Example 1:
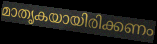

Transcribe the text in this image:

മാതൃകയായിരിക്കണം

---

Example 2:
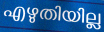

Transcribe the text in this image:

എഴുതിയില്ല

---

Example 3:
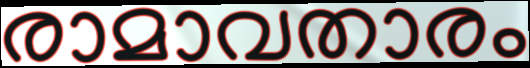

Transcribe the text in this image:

രാമാവതാരം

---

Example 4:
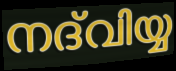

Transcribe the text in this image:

നദ്‌വിയ്യ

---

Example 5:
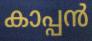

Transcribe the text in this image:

കാപ്പൻ